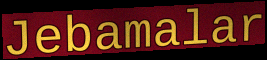
Jebamalar